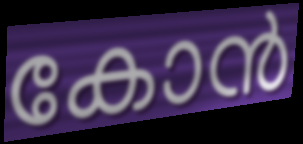
കോൻ